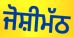
ਜੋਸ਼ੀਮੱਠ